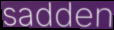
sadden